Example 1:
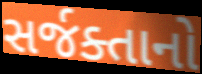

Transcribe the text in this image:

સર્જક્તાનો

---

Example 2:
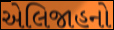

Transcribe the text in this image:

એલિજાહનો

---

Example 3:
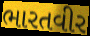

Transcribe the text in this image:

ભારતવીર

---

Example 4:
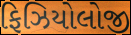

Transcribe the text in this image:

ફિઝિયોલોજી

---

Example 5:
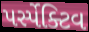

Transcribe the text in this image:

પર્સ્પેક્ટિવ